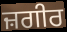
ਜ਼ਗੀਰ